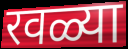
रवळ्या